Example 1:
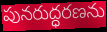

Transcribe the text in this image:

పునరుద్ధరణను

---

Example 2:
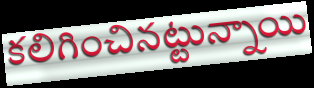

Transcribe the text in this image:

కలిగించినట్టున్నాయి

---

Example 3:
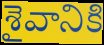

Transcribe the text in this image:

శైవానికి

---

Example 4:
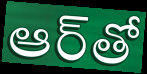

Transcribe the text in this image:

ఆర్‌తో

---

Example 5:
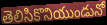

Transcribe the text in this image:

తెలిసికొనియుండునో